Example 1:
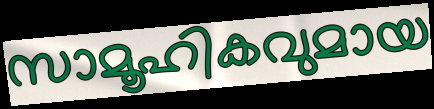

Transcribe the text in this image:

സാമൂഹികവുമായ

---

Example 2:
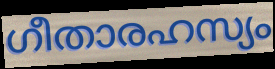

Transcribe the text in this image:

ഗീതാരഹസ്യം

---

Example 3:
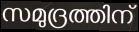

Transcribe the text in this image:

സമുദ്രത്തിന്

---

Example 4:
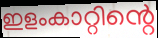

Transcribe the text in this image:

ഇളംകാറ്റിന്റെ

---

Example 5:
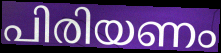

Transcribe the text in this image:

പിരിയണം